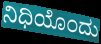
ನಿಧಿಯೊಂದು